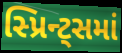
સ્પ્રિન્ટ્સમાં